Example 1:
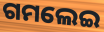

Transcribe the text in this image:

ଗମଲେଇ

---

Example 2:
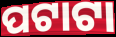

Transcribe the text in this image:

ପଟାଟା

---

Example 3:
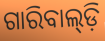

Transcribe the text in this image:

ଗାରିବାଲ୍‌ଡ଼ି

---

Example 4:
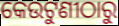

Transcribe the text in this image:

କେଉଟୁଣୀଠାରୁ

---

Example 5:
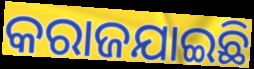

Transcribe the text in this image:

କରାଜଯାଇଛି